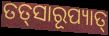
ତତ୍‌ସାରୂପ୍ୟାତ୍